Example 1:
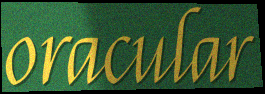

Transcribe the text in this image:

oracular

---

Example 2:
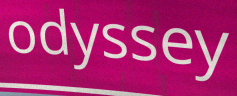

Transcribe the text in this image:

odyssey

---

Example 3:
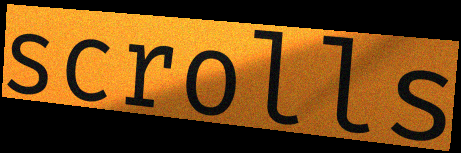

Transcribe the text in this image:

scrolls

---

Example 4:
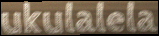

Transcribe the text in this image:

ukulalela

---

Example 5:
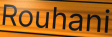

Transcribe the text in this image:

Rouhani